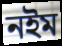
নইম